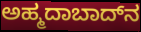
ಅಹ್ಮದಾಬಾದ್‌ನ